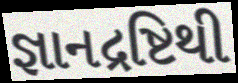
જ્ઞાનદ્રષ્ટિથી